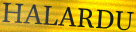
HALARDU